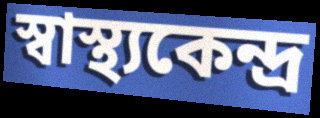
স্বাস্থ্যকেন্দ্ৰ